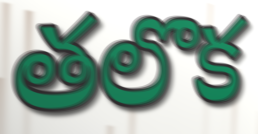
తలొక